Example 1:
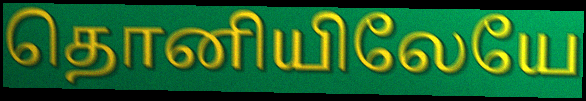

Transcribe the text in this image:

தொனியிலேயே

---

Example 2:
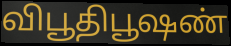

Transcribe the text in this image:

விபூதிபூஷண்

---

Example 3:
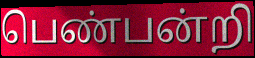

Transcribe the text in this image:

பெண்பன்றி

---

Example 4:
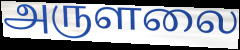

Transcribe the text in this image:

அருளலை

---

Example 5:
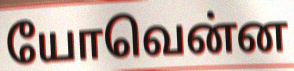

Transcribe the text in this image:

யோவென்ன